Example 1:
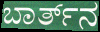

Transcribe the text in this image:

ಬಾರ್ತ್‌ನ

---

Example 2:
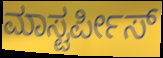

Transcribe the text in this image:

ಮಾಸ್ಟರ್ಪೀಸ್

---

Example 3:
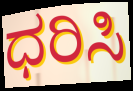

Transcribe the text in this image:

ಧರಿಸಿ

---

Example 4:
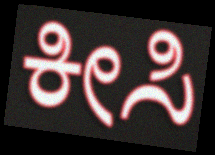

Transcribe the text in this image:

ಕೀಸಿ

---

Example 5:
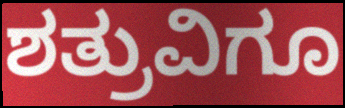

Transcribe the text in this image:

ಶತ್ರುವಿಗೂ